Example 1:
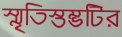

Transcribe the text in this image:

স্মৃতিস্তম্ভটির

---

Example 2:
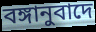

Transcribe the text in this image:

বঙ্গানুবাদে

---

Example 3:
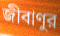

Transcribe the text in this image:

জীবাণুর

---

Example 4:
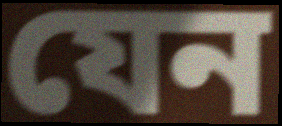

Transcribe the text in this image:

যেন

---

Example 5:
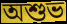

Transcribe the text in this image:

অশুভ